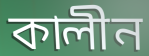
কালীন